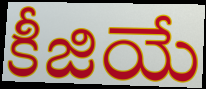
కీజియే